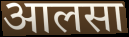
आलसा